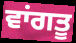
ਵਾਂਗਤੂ